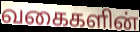
வகைகளின்